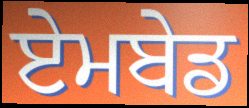
ਏਮਬੇਡ